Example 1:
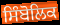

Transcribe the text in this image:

ਸਿੰਬੋਲਿਕ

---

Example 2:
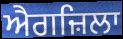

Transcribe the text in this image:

ਐਗਜ਼ਿਲਾ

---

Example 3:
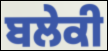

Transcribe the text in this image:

ਬਲੇਕੀ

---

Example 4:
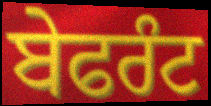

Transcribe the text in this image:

ਬੇਫਰੰਟ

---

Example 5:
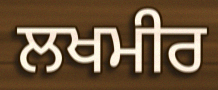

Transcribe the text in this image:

ਲਖਮੀਰ